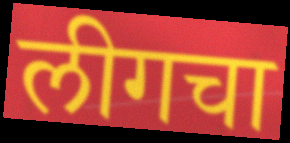
लीगचा